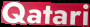
Qatari